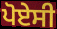
ਪੋਏਸੀ